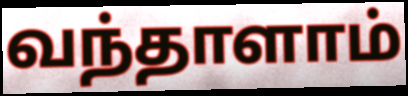
வந்தாளாம்